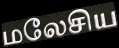
மலேசிய